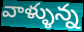
వాళ్ళున్న